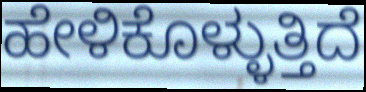
ಹೇಳಿಕೊಳ್ಳುತ್ತಿದೆ